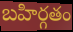
బహిర్గతం